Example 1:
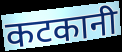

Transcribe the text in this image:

कटकानी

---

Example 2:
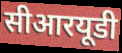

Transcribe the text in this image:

सीआरयूडी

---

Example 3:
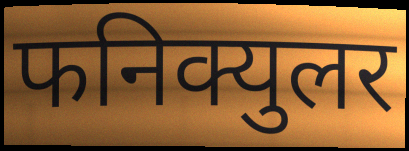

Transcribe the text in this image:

फनिक्युलर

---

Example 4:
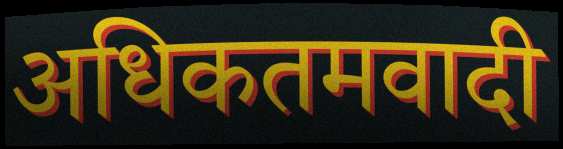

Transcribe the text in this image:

अधिकतमवादी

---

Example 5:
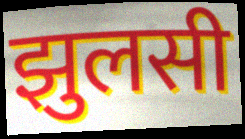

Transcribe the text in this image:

झुलसी